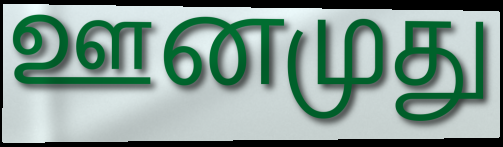
ஊனமுது